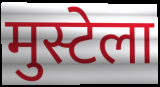
मुस्टेला